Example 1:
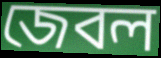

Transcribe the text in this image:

জেবল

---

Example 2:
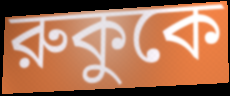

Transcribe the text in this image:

রুকুকে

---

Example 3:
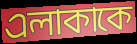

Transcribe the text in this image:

এলাকাকে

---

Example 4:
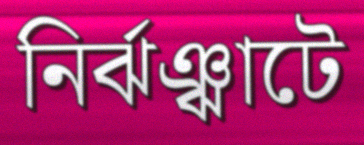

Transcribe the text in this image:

নির্ঝঞ্ঝাটে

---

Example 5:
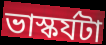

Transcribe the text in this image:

ভাস্কর্যটা